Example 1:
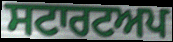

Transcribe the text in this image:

ਸਟਾਰਟਅਪ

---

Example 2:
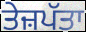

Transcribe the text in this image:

ਤੇਜ਼ਪੱਤਾ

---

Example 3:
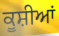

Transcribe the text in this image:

ਕੂਸ਼ੀਆਂ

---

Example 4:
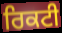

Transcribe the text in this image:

ਰਿਕਟੀ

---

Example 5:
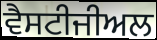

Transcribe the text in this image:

ਵੈਸਟੀਜੀਅਲ